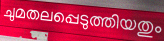
ചുമതലപ്പെടുത്തിയതും